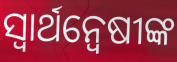
ସ୍ୱାର୍ଥନ୍ୱେଷୀଙ୍କ